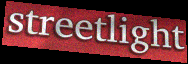
streetlight